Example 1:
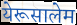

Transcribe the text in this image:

येरूसालेम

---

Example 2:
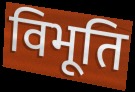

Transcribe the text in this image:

विभूति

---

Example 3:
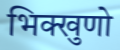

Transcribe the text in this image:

भिक्खुणो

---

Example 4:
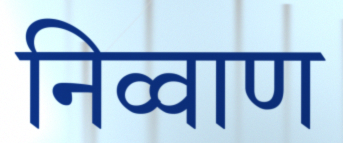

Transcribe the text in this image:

निव्वाण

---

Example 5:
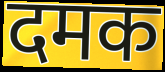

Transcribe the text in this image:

दमक